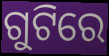
ଗୁଟିରେ